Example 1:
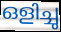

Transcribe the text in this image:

ഒളിച്ചു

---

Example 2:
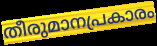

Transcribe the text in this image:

തീരുമാനപ്രകാരം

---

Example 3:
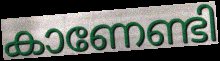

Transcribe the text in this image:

കാണേണ്ടി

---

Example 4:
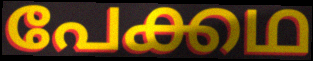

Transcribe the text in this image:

പേക്കഥ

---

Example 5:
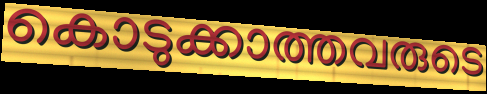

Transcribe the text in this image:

കൊടുക്കാത്തവരുടെ